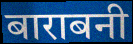
बाराबनी